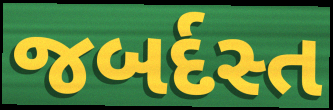
જબર્દસ્ત